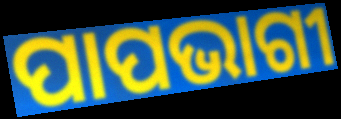
ପାପଭାଗୀ